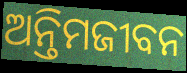
ଅନ୍ତିମଜୀବନ